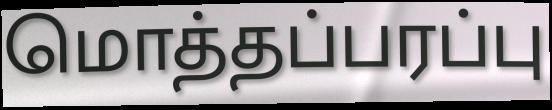
மொத்தப்பரப்பு